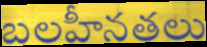
బలహీనతలు